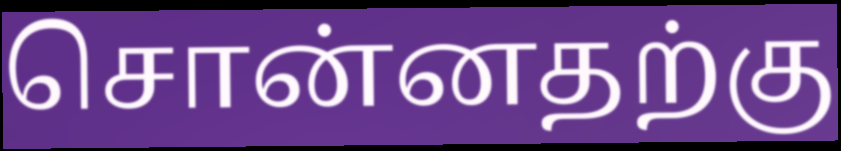
சொன்னதற்கு